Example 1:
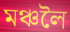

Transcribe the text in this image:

মঞ্চলৈ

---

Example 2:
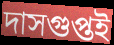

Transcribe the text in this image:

দাসগুপ্তই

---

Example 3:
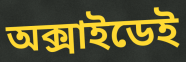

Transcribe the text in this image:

অক্সাইডেই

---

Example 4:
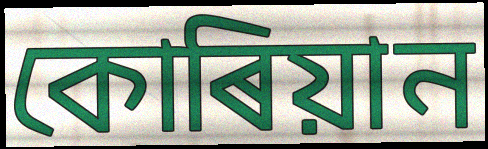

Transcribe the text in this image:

কোৰিয়ান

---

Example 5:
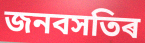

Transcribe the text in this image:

জনবসতিৰ